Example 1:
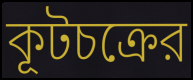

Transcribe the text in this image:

কূটচক্রের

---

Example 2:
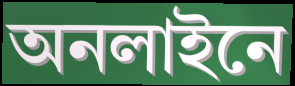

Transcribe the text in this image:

অনলাইনে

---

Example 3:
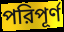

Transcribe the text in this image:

পরিপূর্ণ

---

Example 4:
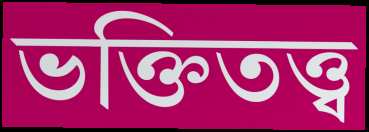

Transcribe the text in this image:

ভক্তিতত্ত্ব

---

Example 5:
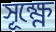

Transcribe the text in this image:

সূক্ষ্ণে